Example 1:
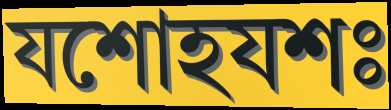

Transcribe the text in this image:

যশোহযশঃ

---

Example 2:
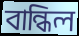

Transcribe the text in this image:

বান্ধিল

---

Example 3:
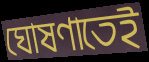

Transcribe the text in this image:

ঘোষণাতেই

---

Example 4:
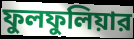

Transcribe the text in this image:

ফুলফুলিয়ার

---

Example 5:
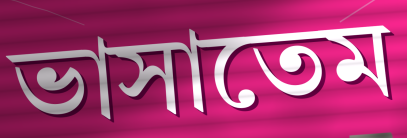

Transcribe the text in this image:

ভাসাতেম